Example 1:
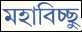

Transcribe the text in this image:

মহাবিচ্ছু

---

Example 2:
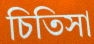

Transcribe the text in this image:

চিতিসা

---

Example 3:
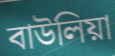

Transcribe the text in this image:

বাউলিয়া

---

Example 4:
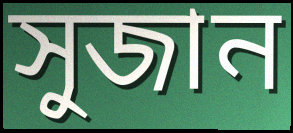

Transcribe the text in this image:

সুজান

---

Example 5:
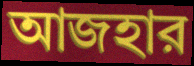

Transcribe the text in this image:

আজহার